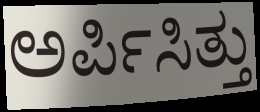
ಅರ್ಪಿಸಿತ್ತು